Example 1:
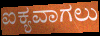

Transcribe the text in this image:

ಐಕ್ಯವಾಗಲು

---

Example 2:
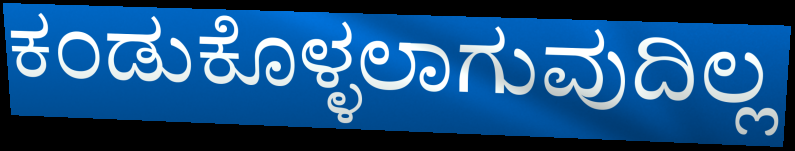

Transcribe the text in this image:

ಕಂಡುಕೊಳ್ಳಲಾಗುವುದಿಲ್ಲ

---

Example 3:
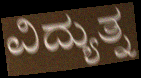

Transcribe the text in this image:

ವಿದ್ಯುತ್ನ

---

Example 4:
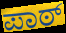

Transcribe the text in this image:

ಪಾಠ್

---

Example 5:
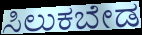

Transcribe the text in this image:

ಸಿಲುಕಬೇಡ